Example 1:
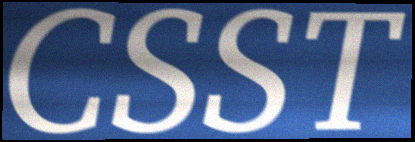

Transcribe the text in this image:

CSST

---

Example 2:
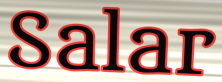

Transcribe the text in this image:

Salar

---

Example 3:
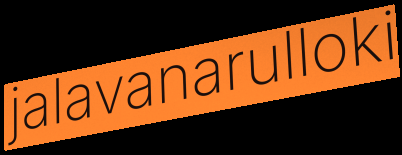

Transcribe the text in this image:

jalavanarulloki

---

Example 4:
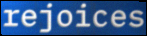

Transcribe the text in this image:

rejoices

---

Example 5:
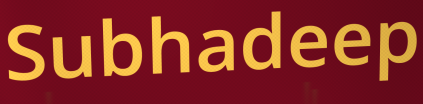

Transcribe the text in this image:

Subhadeep